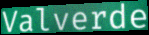
Valverde